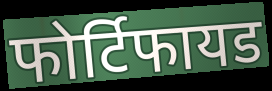
फोर्टिफायड